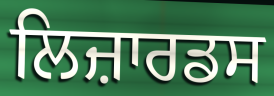
ਲਿਜ਼ਾਰਡਸ